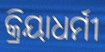
କ୍ରିୟାଧର୍ମୀ